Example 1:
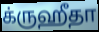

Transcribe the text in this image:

க்ருஹீதா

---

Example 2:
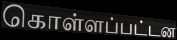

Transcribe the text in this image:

கொள்ளப்பட்டன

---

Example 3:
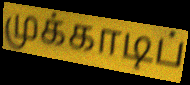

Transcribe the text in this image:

முக்காடிப்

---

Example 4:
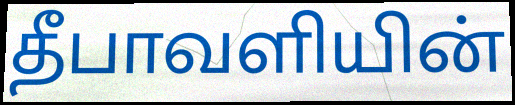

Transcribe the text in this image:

தீபாவளியின்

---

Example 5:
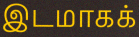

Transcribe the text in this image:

இடமாகக்